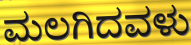
ಮಲಗಿದವಳು